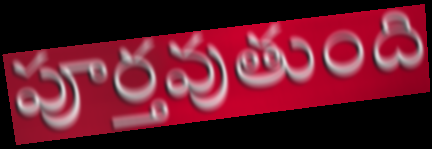
పూర్తవుతుంది